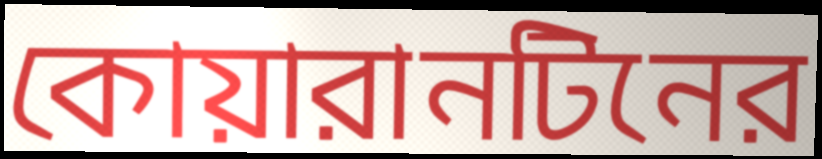
কোয়ারানটিনের